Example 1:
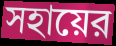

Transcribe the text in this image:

সহায়ের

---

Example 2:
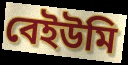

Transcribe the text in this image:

বেইউমি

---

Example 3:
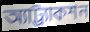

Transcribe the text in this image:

অ্যাট্র্যাকশন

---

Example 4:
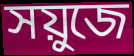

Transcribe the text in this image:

সয়ুজে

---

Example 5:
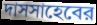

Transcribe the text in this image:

দাসসাহেবের